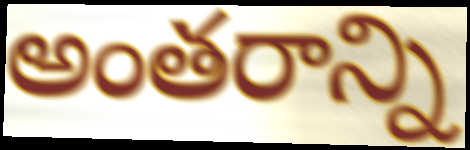
అంతరాన్ని